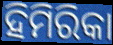
ହିମିରିକା